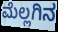
ಮೆಲ್ಲಗಿನ